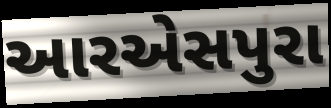
આરએસપુરા